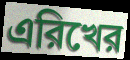
এরিখের